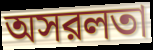
অসরলতা